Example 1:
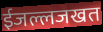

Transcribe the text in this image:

ईजल्लजखत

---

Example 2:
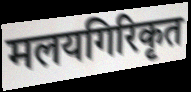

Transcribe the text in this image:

मलयगिरिकृत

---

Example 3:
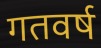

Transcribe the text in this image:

गतवर्ष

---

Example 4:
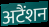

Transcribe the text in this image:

अटैंशन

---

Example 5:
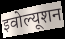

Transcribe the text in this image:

इवोल्यूशन